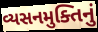
વ્યસનમુક્તિનું